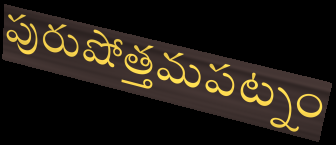
పురుషోత్తమపట్నం